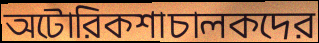
অটোরিকশাচালকদের